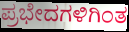
ಪ್ರಭೇದಗಳಿಗಿಂತ